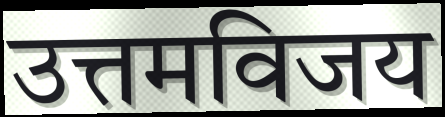
उत्तमविजय